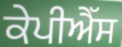
ਕੇਪੀਐੱਸ